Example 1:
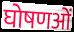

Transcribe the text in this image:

घोषणओं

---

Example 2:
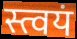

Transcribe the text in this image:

स्त्वयं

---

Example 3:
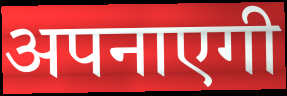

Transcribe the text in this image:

अपनाएगी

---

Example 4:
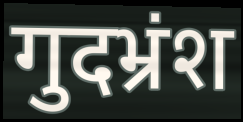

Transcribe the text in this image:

गुदभ्रंश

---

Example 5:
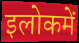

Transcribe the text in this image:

इलोकमें